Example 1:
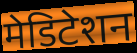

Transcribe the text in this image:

मेडिटेशन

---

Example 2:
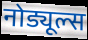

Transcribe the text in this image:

नोड्यूल्स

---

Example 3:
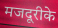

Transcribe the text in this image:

मजदूरीके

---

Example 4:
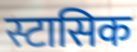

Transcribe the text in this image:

स्टासिक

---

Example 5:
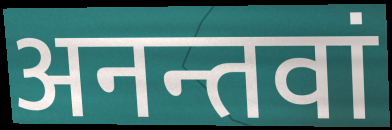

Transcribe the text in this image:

अनन्तवां